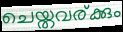
ചെയ്തവര്ക്കും